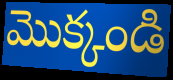
మొక్కండి